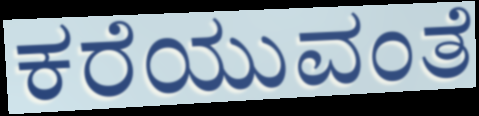
ಕರೆಯುವಂತೆ